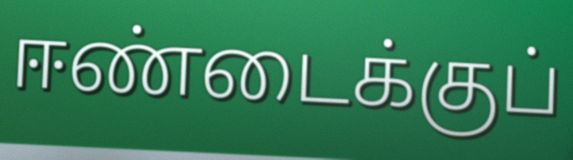
ஈண்டைக்குப்